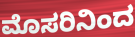
ಮೊಸರಿನಿಂದ